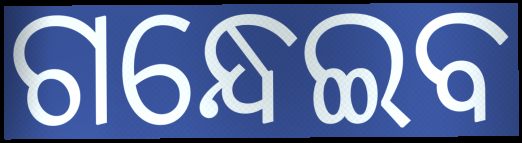
ଗନ୍ଧେଇବ